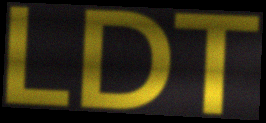
LDT